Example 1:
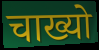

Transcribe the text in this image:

चाख्यो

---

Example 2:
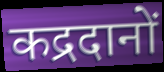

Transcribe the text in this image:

कद्रदानों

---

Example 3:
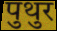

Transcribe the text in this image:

पुथुर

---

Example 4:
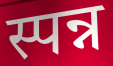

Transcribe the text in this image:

स्पन्न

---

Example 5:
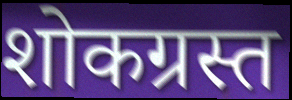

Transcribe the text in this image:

शोकग्रस्त